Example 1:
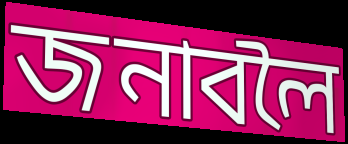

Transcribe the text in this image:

জনাবলৈ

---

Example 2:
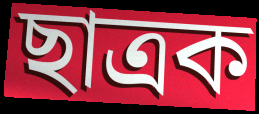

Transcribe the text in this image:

ছাত্ৰক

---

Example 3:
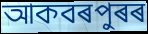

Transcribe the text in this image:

আকবৰপুৰৰ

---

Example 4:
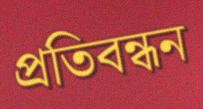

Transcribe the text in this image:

প্ৰতিবন্ধন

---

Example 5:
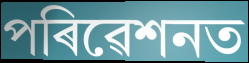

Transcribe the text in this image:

পৰিৱেশনত